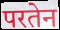
परतेन